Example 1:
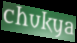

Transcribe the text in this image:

chukya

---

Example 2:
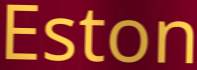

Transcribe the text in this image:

Eston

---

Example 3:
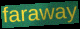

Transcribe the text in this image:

faraway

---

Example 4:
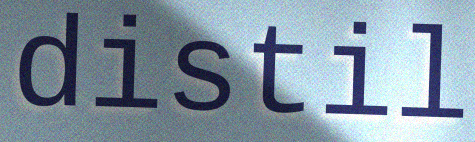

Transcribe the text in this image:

distil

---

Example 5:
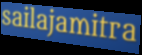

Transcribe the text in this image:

sailajamitra